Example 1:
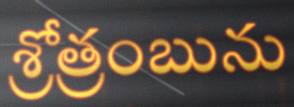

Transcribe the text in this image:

శ్రోత్రంబును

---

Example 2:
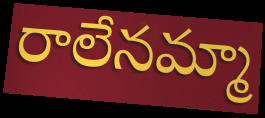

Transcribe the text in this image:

రాలేనమ్మా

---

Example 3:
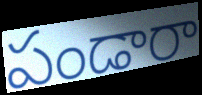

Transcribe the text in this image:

పండారా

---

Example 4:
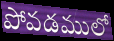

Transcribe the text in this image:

పోవడములో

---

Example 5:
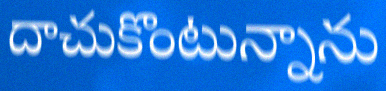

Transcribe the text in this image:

దాచుకొంటున్నాను